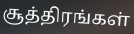
சூத்திரங்கள்